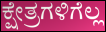
ಕ್ಷೇತ್ರಗಳಿಗೆಲ್ಲ